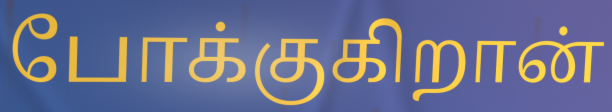
போக்குகிறான்